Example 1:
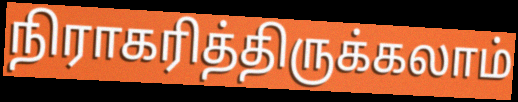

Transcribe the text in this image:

நிராகரித்திருக்கலாம்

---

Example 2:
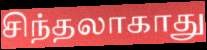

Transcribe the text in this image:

சிந்தலாகாது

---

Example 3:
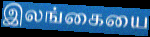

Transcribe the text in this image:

இலங்கையை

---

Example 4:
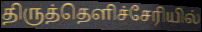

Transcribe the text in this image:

திருத்தெளிச்சேரியில்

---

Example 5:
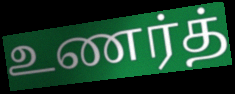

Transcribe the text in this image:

உணர்த்